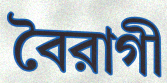
বৈরাগী